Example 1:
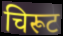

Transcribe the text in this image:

चिरूट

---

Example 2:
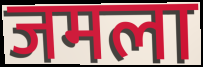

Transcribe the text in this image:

जमला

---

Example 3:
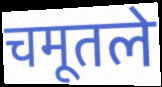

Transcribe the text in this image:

चमूतले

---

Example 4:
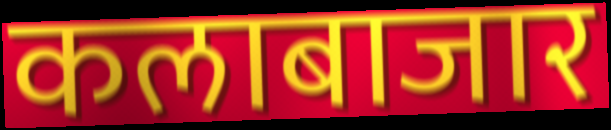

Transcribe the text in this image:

कलाबाजार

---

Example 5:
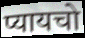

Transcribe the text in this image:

प्यायचो